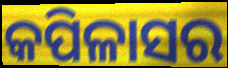
କପିଳାସର